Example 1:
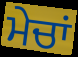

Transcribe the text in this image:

ਮੇਚਾਂ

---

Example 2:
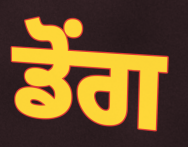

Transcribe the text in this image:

ਡੋਂਗ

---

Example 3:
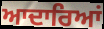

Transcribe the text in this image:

ਆਦਾਰਿਆਂ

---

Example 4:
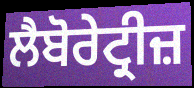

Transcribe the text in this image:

ਲੈਬੋਰੇਟ੍ਰੀਜ਼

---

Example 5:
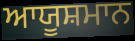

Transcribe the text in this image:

ਆਯੂਸ਼ਮਾਨ